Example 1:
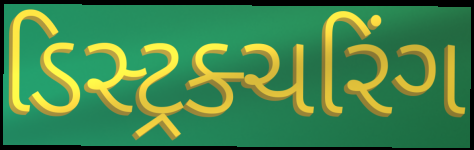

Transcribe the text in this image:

ડિસ્ટ્રક્ચરિંગ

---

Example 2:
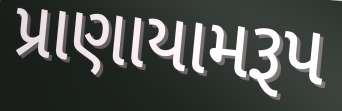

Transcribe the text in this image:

પ્રાણાયામરૂપ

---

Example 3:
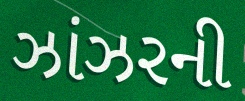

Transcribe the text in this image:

ઝાંઝરની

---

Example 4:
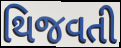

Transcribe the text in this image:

થિજવતી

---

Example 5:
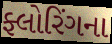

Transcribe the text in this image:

ફ્લોરિંગના